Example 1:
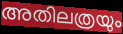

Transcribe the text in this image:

അതിലത്രയും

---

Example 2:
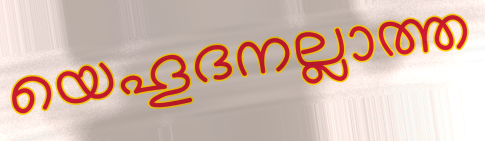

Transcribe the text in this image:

യെഹൂദനല്ലാത്ത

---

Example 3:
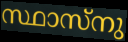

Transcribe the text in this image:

സ്ഥാസ്നു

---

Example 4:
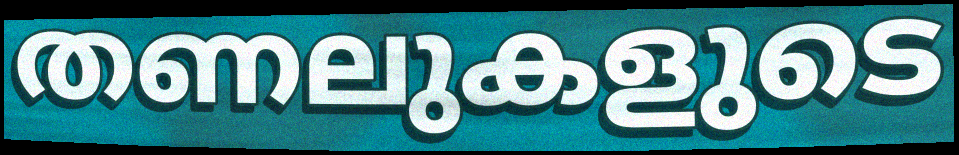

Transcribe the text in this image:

തണലുകളുടെ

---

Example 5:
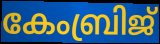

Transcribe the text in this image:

കേംബ്രിജ്